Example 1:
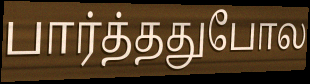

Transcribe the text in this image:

பார்த்ததுபோல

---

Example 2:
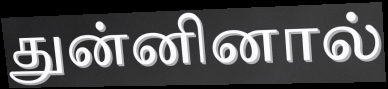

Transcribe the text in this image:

துன்னினால்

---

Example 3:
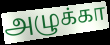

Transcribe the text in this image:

அழுக்கா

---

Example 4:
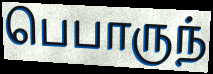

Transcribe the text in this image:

பெபாருந்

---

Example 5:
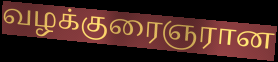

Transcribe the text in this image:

வழக்குரைஞரான